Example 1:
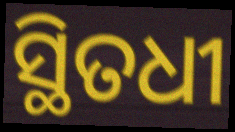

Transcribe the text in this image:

ସ୍ଥିତଧୀ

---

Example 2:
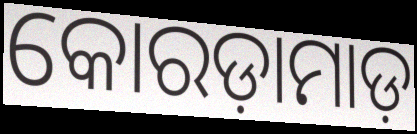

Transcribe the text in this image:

କୋରଡ଼ାମାଡ଼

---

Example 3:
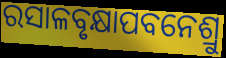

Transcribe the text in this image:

ରସାଳବୃକ୍ଷାପବନେଶ୍ରୁ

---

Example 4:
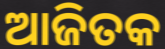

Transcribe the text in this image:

ଆଜିତକ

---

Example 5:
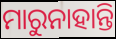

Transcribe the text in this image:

ମାରୁନାହାନ୍ତି